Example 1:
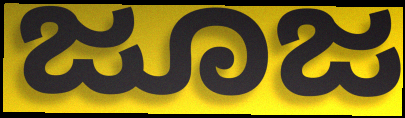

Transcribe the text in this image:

ಜೂಜ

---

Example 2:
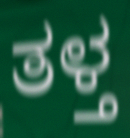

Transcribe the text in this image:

ತಳ್ತ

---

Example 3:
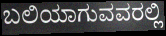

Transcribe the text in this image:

ಬಲಿಯಾಗುವವರಲ್ಲಿ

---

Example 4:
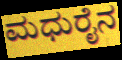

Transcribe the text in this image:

ಮಧುರೈನ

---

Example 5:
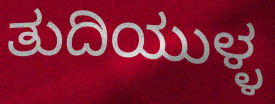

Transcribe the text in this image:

ತುದಿಯುಳ್ಳ